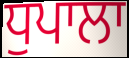
ਧੁਪਾਲਾ